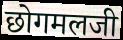
छोगमलजी